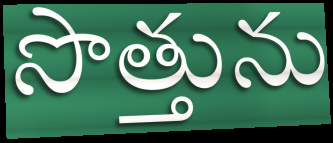
సొత్తును